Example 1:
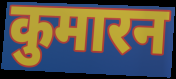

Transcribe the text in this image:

कुमारन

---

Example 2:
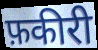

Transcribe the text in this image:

फ़कीरी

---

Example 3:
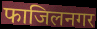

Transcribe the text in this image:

फाजिलनगर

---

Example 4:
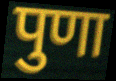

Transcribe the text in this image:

पुणा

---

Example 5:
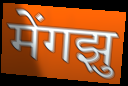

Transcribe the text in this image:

मेंगझु